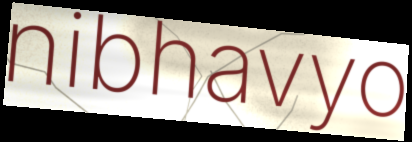
nibhavyo